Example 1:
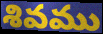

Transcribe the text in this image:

శివము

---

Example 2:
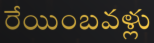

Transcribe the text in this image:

రేయింబవళ్లు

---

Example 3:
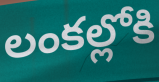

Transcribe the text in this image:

లంకల్లోకి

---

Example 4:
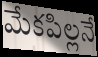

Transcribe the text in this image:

మేకపిల్లనే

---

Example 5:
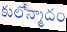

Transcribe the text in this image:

కులోన్మాదం